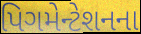
પિગમેન્ટેશનના